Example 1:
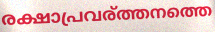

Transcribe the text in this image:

രക്ഷാപ്രവര്ത്തനത്തെ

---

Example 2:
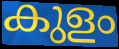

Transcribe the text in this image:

കുളം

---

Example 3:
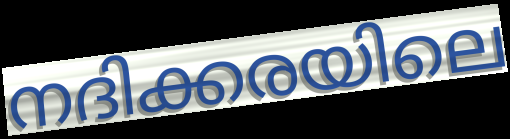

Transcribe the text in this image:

നദിക്കരയിലെ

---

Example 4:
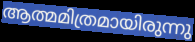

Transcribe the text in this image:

ആത്മമിത്രമായിരുന്നു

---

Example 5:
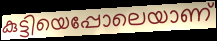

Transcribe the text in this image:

കുട്ടിയെപ്പോലെയാണ്